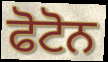
ਫੋਟੋਨ